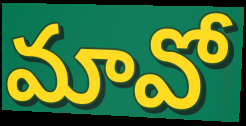
మావో